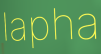
lapha